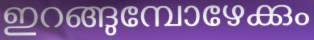
ഇറങ്ങുമ്പോഴേക്കും